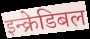
इन्क्रेडिबल